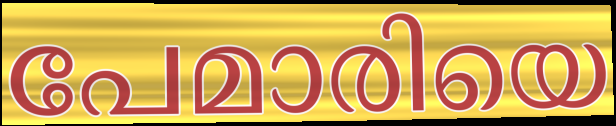
പേമാരിയെ